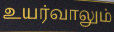
உயர்வாலும்